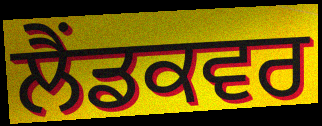
ਲੈਂਡਕਵਰ